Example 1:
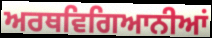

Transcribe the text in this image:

ਅਰਥਵਿਗਿਆਨੀਆਂ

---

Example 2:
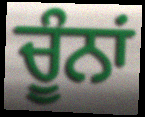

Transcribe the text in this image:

ਚੂੰਨਾਂ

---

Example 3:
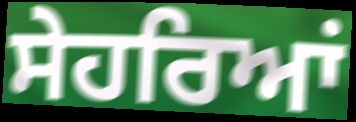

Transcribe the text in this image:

ਸੇਹਰਿਆਂ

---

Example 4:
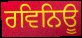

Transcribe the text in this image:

ਰਵਿਨਿਊ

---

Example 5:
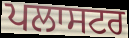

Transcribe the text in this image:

ਪਲਾਸਟਰ